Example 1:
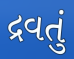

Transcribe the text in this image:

દ્રવતું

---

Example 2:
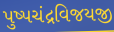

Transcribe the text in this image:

પુષ્પચંદ્રવિજયજી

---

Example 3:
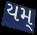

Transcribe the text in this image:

યમ્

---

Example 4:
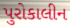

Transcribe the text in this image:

પુરોકાલીન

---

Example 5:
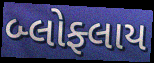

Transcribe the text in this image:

બ્લોફ્લાય